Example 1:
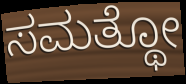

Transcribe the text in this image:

ಸಮತ್ಥೋ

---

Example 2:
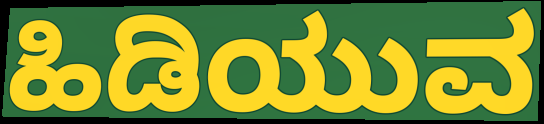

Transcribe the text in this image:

ಹಿಡಿಯುವ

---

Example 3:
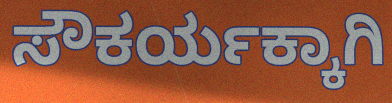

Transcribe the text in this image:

ಸೌಕರ್ಯಕ್ಕಾಗಿ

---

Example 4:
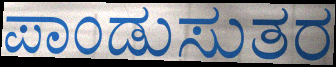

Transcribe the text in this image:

ಪಾಂಡುಸುತರ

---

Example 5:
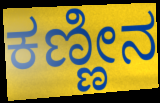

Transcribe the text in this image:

ಕಣ್ಣೀನ